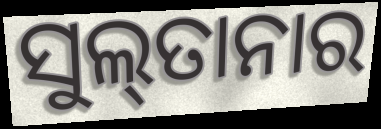
ସୁଲ୍‌ତାନାର